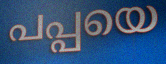
പപ്പയെ